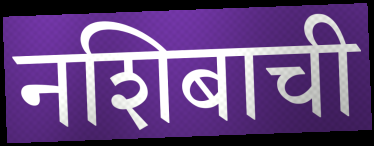
नशिबाची